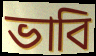
ভাবি